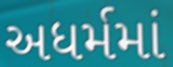
અધર્મમાં